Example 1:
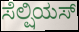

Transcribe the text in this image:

ಸೆಲ್ಷಿಯಸ್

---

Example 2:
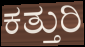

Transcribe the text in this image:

ಕತ್ತುರಿ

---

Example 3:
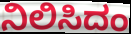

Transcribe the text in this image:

ನಿಲಿಸಿದಂ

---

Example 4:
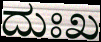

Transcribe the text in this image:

ದುಃಖ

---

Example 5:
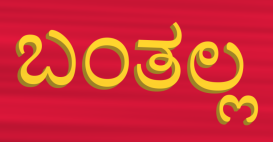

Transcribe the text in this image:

ಬಂತಲ್ಲ